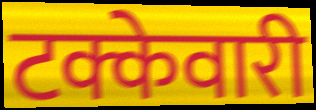
टक्केवारी